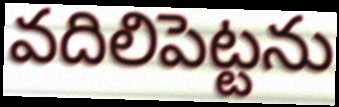
వదిలిపెట్టను